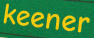
keener